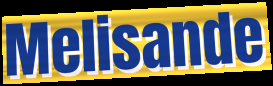
Melisande